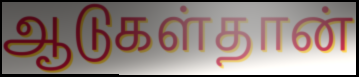
ஆடுகள்தான்